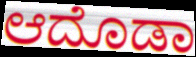
ಆದೊಡಾ